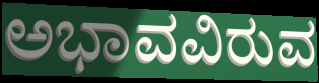
ಅಭಾವವಿರುವ